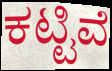
ಕಟ್ಟಿವೆ